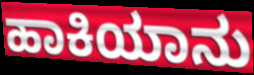
ಹಾಕಿಯಾನು